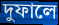
দুফালে